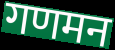
गणमन